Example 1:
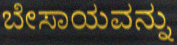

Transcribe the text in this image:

ಬೇಸಾಯವನ್ನು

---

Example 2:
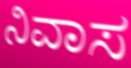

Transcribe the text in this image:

ನಿವಾಸ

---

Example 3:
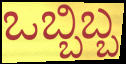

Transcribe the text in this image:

ಒಬ್ಬಿಬ್ಬ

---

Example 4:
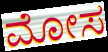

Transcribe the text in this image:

ಮೋಸ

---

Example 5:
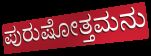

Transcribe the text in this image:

ಪುರುಷೋತ್ತಮನು